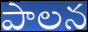
పాలన